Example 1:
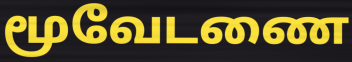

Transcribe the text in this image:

மூவேடணை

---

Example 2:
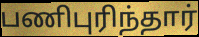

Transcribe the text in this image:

பணிபுரிந்தார்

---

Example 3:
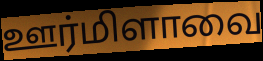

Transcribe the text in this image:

ஊர்மிளாவை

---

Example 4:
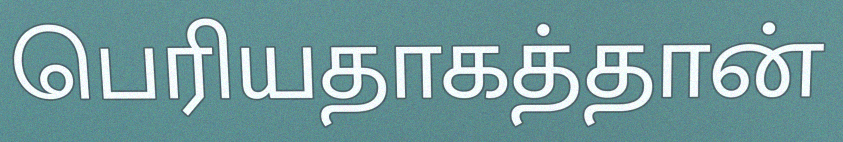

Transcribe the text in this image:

பெரியதாகத்தான்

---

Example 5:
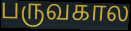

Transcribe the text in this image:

பருவகால